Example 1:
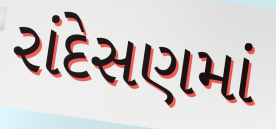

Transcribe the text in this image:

રાંદેસણમાં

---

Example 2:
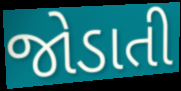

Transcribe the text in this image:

જોડાતી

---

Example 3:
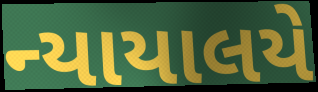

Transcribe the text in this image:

ન્યાયાલયે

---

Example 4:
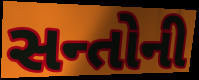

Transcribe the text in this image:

સન્તોની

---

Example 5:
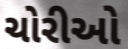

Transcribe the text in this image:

ચોરીઓ